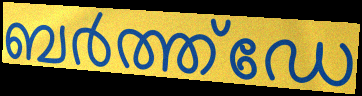
ബർത്ത്ഡേ